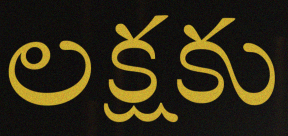
లక్షకు